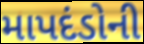
માપદંડોની